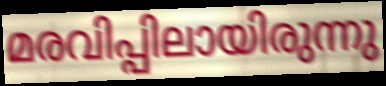
മരവിപ്പിലായിരുന്നു